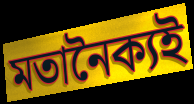
মতানৈক্যই